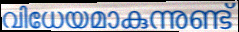
വിധേയമാകുന്നുണ്ട്